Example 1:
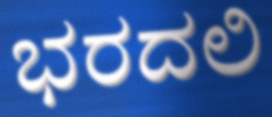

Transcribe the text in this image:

ಭರದಲಿ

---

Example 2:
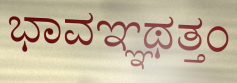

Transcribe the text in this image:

ಭಾವಞ್ಞಥತ್ತಂ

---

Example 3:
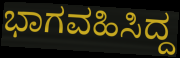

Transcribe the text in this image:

ಭಾಗವಹಿಸಿದ್ದ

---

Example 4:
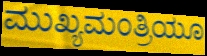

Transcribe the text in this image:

ಮುಖ್ಯಮಂತ್ರಿಯೂ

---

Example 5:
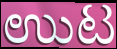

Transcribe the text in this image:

ಉುಟ